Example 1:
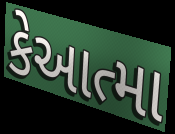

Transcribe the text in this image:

કેઆત્મા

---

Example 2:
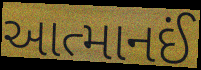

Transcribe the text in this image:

આત્માનઈં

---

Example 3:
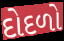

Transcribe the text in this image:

દોદળો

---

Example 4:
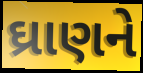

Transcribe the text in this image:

ઘ્રાણને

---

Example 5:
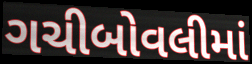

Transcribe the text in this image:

ગચીબોવલીમાં